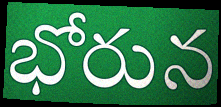
భోరున